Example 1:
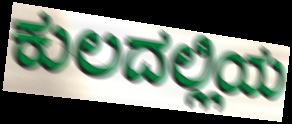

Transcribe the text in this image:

ಕುಲದಲ್ಲಿಯ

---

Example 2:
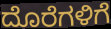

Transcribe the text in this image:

ದೊರೆಗಳಿಗೆ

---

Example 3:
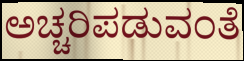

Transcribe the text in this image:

ಅಚ್ಚರಿಪಡುವಂತೆ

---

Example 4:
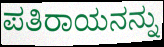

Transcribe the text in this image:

ಪತಿರಾಯನನ್ನು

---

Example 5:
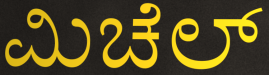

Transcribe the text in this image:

ಮಿಚೆಲ್